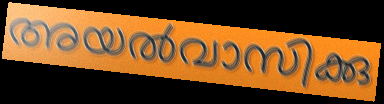
അയൽവാസിക്കു